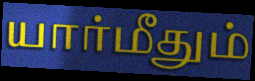
யார்மீதும்